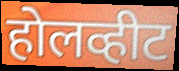
होलव्हीट